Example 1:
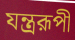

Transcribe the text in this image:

যন্ত্ররূপী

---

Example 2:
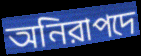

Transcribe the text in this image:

অনিরাপদে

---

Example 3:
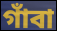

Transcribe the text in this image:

গাঁবা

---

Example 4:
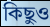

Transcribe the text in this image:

কিছুও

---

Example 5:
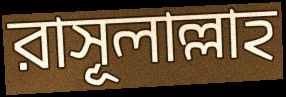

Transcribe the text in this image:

রাসূলাল্লাহ